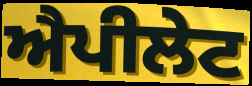
ਐਪੀਲੇਟ